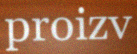
proizv